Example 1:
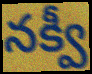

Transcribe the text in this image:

నక్వీ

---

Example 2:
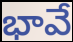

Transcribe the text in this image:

భావే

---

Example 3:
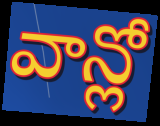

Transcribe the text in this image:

వాన్లో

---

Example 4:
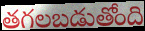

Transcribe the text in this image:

తగలబడుతోంది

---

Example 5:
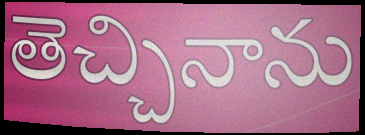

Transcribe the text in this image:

తెచ్చినాను